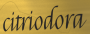
citriodora